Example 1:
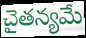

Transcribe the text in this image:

చైతన్యమే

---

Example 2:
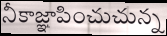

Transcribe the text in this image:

నీకాజ్ఞాపించుచున్న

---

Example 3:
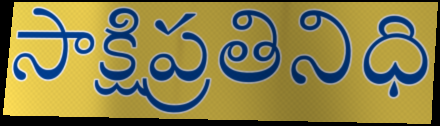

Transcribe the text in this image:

సాక్షిప్రతినిధి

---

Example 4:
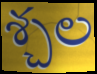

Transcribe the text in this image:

శ్చల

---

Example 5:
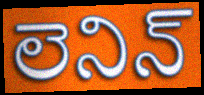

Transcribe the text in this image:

లెనిన్